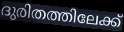
ദുരിതത്തിലേക്ക്